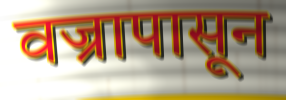
वज्रापासून